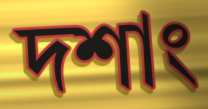
দশাং